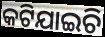
କଟିଯାଇଚି